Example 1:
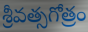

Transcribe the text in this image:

శ్రీవత్సగోత్రం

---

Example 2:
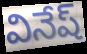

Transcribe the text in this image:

వినేష్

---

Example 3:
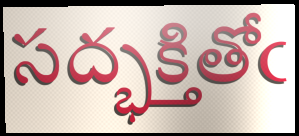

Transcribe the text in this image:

సద్భక్తితోఁ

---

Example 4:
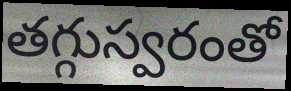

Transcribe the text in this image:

తగ్గుస్వరంతో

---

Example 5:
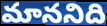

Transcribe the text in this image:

మాననిది